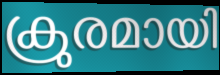
ക്രുരമായി